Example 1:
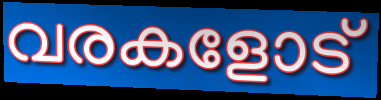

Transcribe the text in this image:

വരകളോട്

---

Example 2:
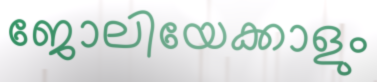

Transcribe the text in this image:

ജോലിയേക്കാളും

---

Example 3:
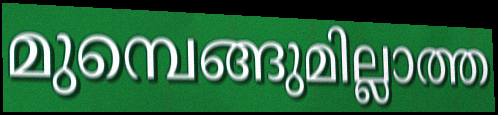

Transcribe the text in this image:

മുമ്പെങ്ങുമില്ലാത്ത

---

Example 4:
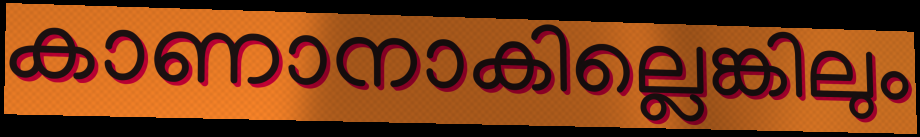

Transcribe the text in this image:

കാണാനാകില്ലെങ്കിലും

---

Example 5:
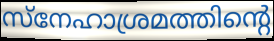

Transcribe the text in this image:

സ്നേഹാശ്രമത്തിന്റെ